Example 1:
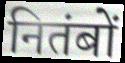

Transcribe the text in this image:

नितंबों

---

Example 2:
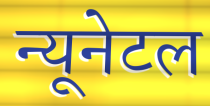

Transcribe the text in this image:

न्यूनेटल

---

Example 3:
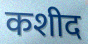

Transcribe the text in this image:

कशीद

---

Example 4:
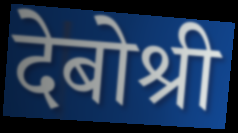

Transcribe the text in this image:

देबोश्री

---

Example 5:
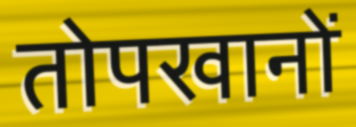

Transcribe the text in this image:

तोपखानों